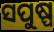
ସପୁଷ୍ପ